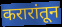
करारांतून